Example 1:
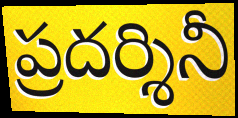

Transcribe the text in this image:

ప్రదర్శినీ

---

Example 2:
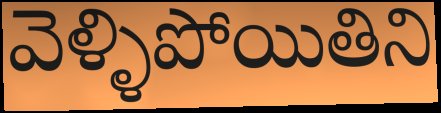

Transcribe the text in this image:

వెళ్ళిపోయితిని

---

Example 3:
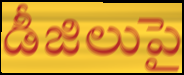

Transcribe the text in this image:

డీజిలుపై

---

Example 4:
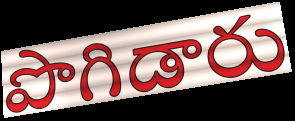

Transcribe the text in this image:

పొగిడారు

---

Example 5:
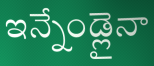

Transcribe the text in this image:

ఇన్నేండ్లైనా